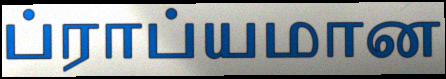
ப்ராப்யமான